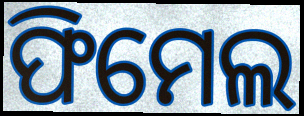
ଫିମେଲ